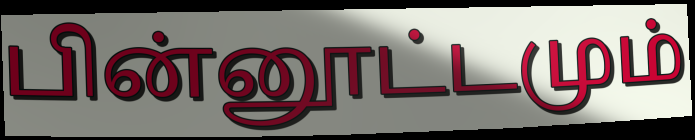
பின்னூட்டமும்